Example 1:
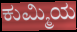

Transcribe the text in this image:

ಕುಮ್ಮಿಯ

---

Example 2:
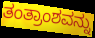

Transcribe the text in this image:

ತಂತ್ರಾಂಶವನ್ನು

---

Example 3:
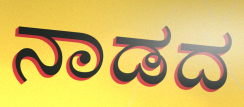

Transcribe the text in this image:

ನಾಡದ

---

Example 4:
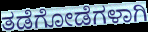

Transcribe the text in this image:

ತಡೆಗೋಡೆಗಳಾಗಿ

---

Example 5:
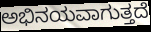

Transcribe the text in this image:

ಅಭಿನಯವಾಗುತ್ತದೆ